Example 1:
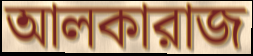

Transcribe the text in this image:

আলকারাজ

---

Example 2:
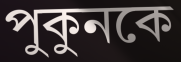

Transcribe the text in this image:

পুকুনকে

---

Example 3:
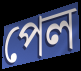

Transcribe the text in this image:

পেল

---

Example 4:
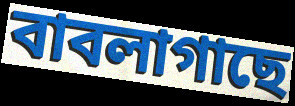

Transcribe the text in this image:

বাবলাগাছে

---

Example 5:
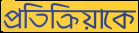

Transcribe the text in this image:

প্রতিক্রিয়াকে